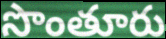
సొంతూరు